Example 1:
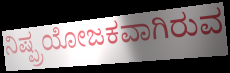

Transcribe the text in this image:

ನಿಷ್ಪ್ರಯೋಜಕವಾಗಿರುವ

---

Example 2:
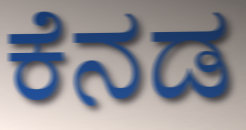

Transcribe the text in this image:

ಕೆನಡ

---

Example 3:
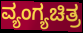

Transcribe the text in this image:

ವ್ಯಂಗ್ಯಚಿತ್ರ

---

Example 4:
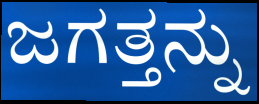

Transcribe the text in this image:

ಜಗತ್ತನ್ನು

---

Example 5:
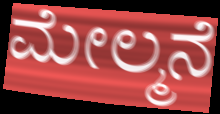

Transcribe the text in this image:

ಮೇಲ್ಮನೆ